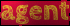
agent